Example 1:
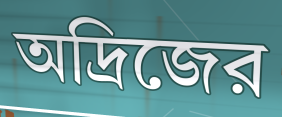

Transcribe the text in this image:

অদ্রিজের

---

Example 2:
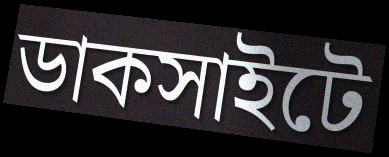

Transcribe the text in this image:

ডাকসাইটে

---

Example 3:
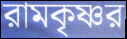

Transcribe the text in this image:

রামকৃষ্ণর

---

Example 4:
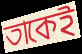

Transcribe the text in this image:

তাকেই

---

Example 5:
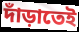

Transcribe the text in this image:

দাঁড়াতেই